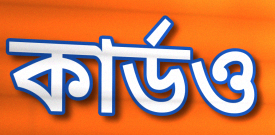
কার্ডও